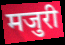
मजुरी